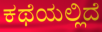
ಕಥೆಯಲ್ಲಿದೆ